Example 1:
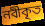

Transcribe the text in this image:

নবীকৃত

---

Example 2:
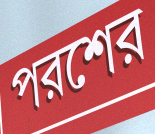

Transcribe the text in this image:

পরশের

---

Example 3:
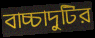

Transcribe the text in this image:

বাচ্চাদুটির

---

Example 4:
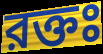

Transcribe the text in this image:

রক্তঃ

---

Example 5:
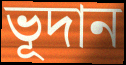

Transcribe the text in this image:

ভূদান